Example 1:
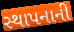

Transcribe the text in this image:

સ્થાપનાની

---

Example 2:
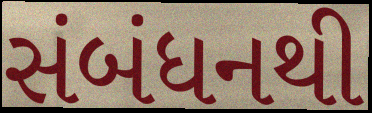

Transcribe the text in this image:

સંબંધનથી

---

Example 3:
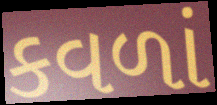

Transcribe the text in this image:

કવળાં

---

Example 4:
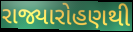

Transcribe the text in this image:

રાજ્યારોહણથી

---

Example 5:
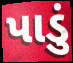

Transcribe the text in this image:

પાડું